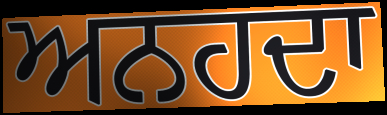
ਅਨਹਦਾ